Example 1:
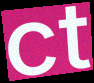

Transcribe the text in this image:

ct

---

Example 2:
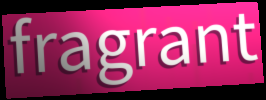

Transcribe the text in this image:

fragrant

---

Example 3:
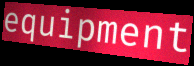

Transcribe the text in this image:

equipment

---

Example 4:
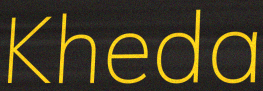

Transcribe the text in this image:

Kheda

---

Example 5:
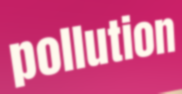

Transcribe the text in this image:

pollution